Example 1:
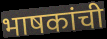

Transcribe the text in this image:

भाषकांची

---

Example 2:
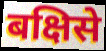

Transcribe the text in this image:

बक्षिसे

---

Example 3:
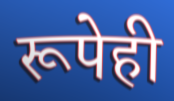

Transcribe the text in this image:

रूपेही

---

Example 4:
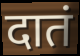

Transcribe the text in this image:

दातं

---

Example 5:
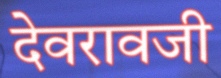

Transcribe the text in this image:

देवरावजी